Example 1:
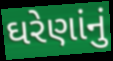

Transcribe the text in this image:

ઘરેણાંનું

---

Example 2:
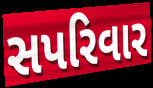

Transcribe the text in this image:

સપરિવાર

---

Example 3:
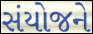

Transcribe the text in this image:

સંયોજને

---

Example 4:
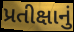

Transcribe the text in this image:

પ્રતીક્ષાનું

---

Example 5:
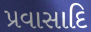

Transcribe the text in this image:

પ્રવાસાદિ